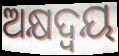
ଅକ୍ଷଦ୍ବୟ